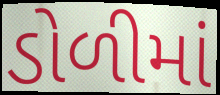
ડોળીમાં